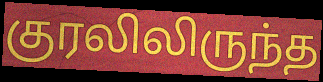
குரலிலிருந்த